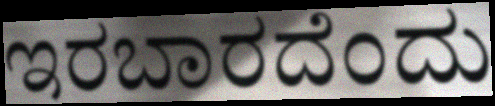
ಇರಬಾರದೆಂದು